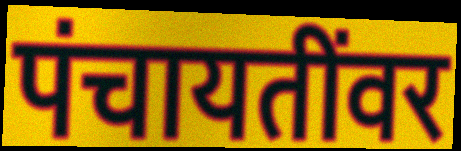
पंचायतींवर